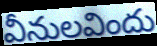
వీనులవిందు